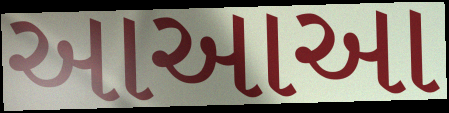
આઆઆ